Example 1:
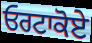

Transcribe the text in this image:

ਓਰਟਾਕੋਏ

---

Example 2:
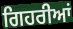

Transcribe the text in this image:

ਗਿਹਰੀਆਂ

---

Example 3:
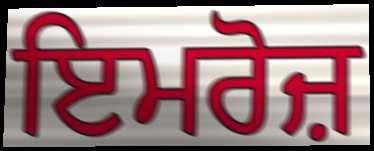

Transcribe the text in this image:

ਇਮਰੋਜ਼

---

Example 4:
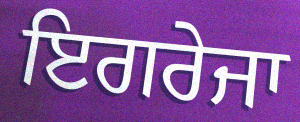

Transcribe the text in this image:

ਇਗਰੇਜਾ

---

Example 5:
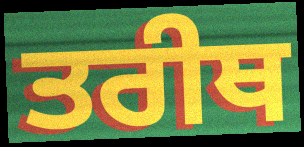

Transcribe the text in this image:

ਤਰੀਥ